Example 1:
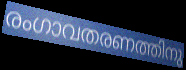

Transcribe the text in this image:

രംഗാവതരണത്തിനു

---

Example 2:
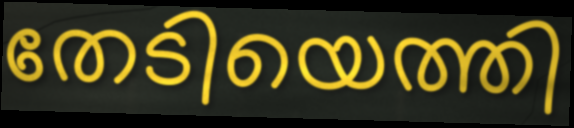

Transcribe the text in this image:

തേടിയെത്തി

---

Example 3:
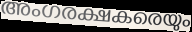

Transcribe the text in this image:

അംഗരക്ഷകരെയും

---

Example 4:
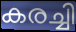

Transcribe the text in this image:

കരച്ചി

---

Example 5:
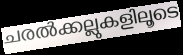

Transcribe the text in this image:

ചരൽക്കല്ലുകളിലൂടെ